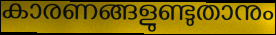
കാരണങ്ങളുണ്ടുതാനും